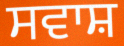
ਸਵਾਸ਼